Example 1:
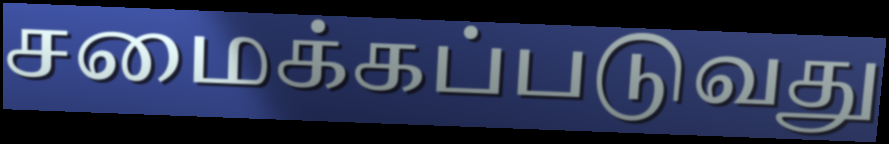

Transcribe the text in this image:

சமைக்கப்படுவது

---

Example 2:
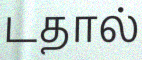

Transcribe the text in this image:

டதால்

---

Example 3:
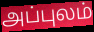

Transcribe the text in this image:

அப்புலம்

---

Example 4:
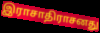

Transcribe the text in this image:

இராசாதிராசனது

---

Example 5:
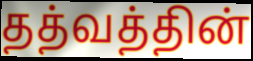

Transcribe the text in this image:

தத்வத்தின்